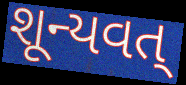
શૂન્યવત્